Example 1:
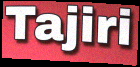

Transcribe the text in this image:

Tajiri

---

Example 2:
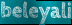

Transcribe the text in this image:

beleyali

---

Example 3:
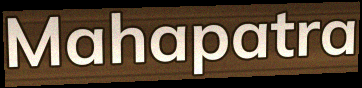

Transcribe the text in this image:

Mahapatra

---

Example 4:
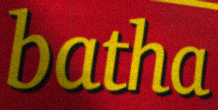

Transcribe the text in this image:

batha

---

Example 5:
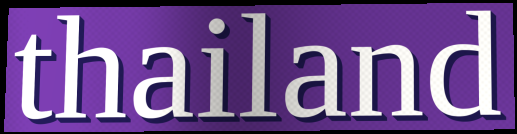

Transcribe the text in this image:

thailand